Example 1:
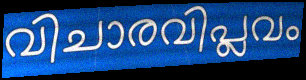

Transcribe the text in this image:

വിചാരവിപ്ലവം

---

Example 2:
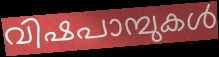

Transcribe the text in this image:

വിഷപാമ്പുകൾ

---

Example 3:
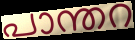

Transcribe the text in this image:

പാന്തറ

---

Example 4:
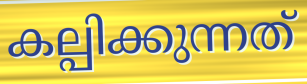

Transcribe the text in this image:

കല്പിക്കുന്നത്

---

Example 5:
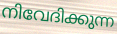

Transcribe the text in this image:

നിവേദിക്കുന്ന